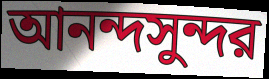
আনন্দসুন্দর